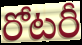
రోటరీ